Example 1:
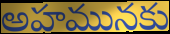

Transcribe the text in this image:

అహమునకు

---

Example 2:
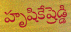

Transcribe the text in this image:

హృషికేష్రెడ్డి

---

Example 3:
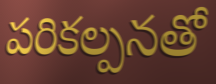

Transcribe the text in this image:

పరికల్పనతో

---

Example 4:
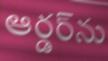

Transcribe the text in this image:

ఆర్డర్‌ను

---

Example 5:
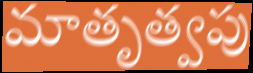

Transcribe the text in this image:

మాతృత్వపు